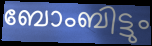
ബോംബിട്ടും